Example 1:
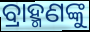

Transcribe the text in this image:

ବ୍ରାହ୍ମଣଙ୍କୁ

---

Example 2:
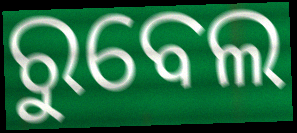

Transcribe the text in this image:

ରୁବେଲ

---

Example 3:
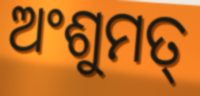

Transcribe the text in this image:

ଅଂଶୁମତ୍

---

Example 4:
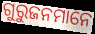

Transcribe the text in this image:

ଗୁରୁଜନମାନେ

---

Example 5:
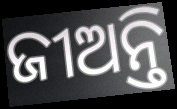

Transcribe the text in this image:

ଜୀଅନ୍ତି